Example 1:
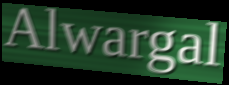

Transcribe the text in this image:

Alwargal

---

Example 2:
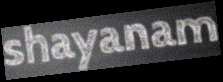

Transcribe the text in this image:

shayanam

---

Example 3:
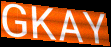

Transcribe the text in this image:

GKAY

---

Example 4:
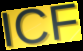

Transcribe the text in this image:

ICF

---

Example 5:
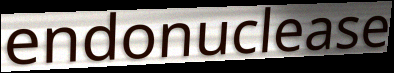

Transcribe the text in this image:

endonuclease